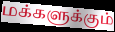
மக்களுக்கும்